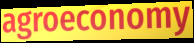
agroeconomy